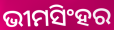
ଭୀମସିଂହର